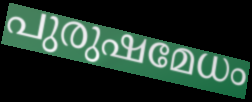
പുരുഷമേധം